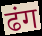
ढंग